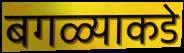
बगळ्याकडे